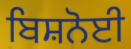
ਬਿਸ਼ਨੋਈ